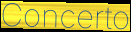
Concerto